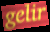
gelir